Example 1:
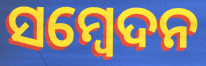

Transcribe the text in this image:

ସମ୍ଵେଦନ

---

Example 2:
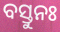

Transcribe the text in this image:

ବସ୍ତୁନଃ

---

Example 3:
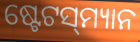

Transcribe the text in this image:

ଷ୍ଟେଟସ୍‌ମ୍ୟାନ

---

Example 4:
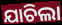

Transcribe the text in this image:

ଯାଚିଲା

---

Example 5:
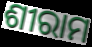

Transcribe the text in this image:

ଶୀରାମ